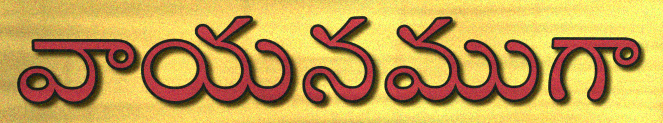
వాయనముగా